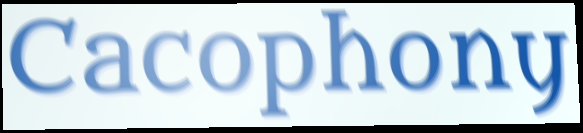
Cacophony